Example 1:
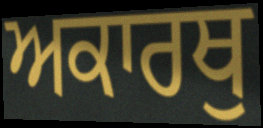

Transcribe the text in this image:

ਅਕਾਰਥੁ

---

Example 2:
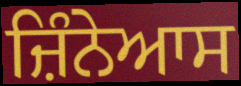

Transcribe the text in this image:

ਜ਼ਿੰਨੇਆਸ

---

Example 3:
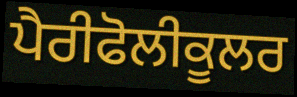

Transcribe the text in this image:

ਪੈਰੀਫੋਲੀਕੂਲਰ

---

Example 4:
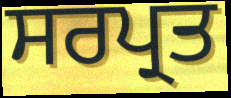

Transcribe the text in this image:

ਸਰਪ੍ਰਤ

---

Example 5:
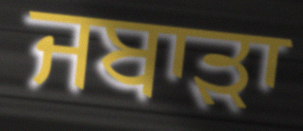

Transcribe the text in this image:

ਜਬਾੜਾ